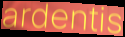
ardentis